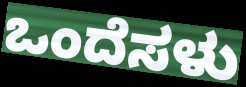
ಒಂದೆಸಳು